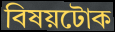
বিষয়টোক